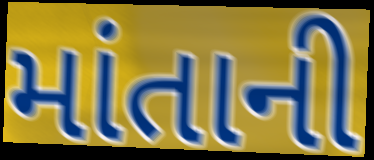
માંતાની